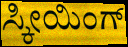
ಸ್ಕೀಯಿಂಗ್